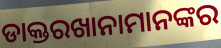
ଡାକ୍ତରଖାନାମାନଙ୍କର